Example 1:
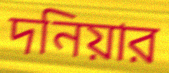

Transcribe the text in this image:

দনিয়ার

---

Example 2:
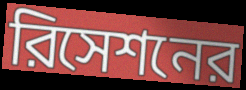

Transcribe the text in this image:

রিসেশনের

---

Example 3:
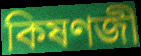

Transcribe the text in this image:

কিষণজী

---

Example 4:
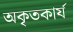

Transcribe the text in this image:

অকৃতকার্য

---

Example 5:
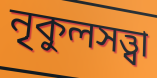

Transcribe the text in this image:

নৃকুলসত্ত্বা